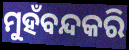
ମୁହଁବନ୍ଦକରି